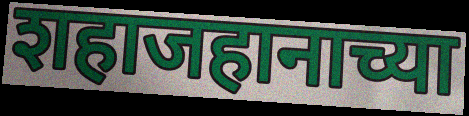
शहाजहानाच्या